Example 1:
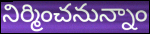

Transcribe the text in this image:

నిర్మించనున్నాం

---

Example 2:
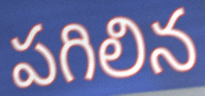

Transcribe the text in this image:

పగిలిన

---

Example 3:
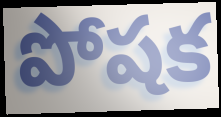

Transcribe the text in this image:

పోషక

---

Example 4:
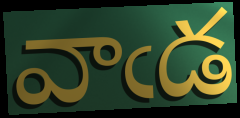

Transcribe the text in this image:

వాఁడ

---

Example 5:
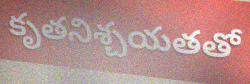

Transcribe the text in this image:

కృతనిశ్చయతతో